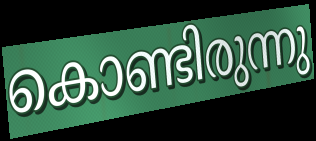
കൊണ്ടിരുന്നു